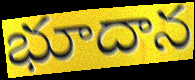
భూదాన